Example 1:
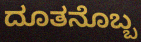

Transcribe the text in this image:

ದೂತನೊಬ್ಬ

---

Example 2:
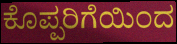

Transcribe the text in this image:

ಕೊಪ್ಪರಿಗೆಯಿಂದ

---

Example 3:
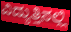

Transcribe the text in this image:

ವಿದ್ಯುತ್ತಿನಲ್ಲಿ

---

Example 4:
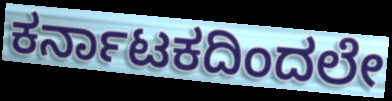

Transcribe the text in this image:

ಕರ್ನಾಟಕದಿಂದಲೇ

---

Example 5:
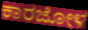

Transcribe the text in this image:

ಕಾರಜೋಳ